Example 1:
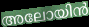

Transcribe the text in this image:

അലോയിൻ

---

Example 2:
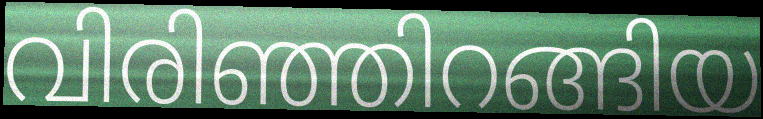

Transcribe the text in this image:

വിരിഞ്ഞിറങ്ങിയ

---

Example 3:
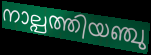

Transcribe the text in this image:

നാല്പത്തിയഞ്ചു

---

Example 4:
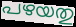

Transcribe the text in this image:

പഴയതു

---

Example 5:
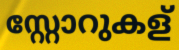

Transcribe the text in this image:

സ്റ്റോറുകള്